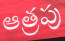
ఆత్రపు